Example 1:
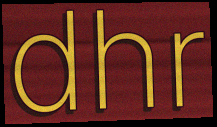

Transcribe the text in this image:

dhr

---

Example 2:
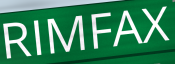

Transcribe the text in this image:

RIMFAX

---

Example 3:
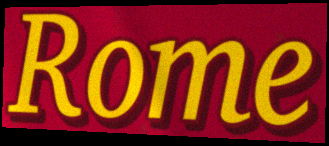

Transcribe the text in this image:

Rome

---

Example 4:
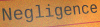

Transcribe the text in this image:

Negligence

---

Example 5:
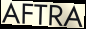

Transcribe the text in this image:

AFTRA